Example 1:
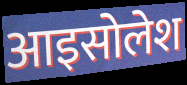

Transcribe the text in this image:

आइसोलेश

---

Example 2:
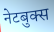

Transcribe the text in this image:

नेटबुक्स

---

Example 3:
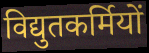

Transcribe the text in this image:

विद्युतकर्मियों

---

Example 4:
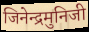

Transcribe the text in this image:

जिनेन्द्रमुनिजी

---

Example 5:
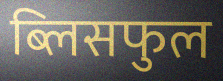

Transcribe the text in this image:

ब्लिसफुल